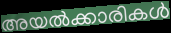
അയൽക്കാരികൾ